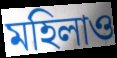
মহিলাও